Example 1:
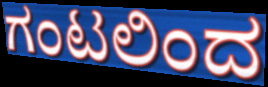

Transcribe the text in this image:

ಗಂಟಲಿಂದ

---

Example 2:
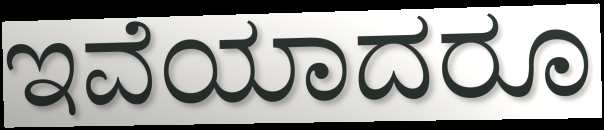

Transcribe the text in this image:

ಇವೆಯಾದರೂ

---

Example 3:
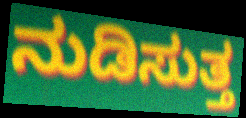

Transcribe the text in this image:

ನುಡಿಸುತ್ತ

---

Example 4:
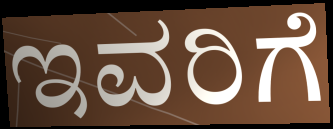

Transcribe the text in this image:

ಇವರಿಗೆ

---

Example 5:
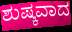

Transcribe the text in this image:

ಶುಷ್ಕವಾದ